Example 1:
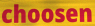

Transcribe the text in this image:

choosen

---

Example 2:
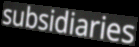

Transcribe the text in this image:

subsidiaries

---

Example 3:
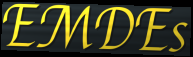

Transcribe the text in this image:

EMDEs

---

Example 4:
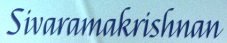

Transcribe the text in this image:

Sivaramakrishnan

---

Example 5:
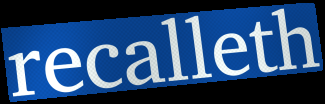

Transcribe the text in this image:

recalleth